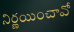
నిర్ణయించావో